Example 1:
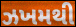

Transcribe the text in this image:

ઝખમથી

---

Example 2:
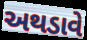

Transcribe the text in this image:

અથડાવે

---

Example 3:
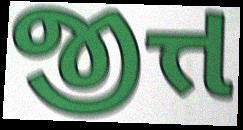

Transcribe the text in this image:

જીત્ત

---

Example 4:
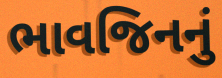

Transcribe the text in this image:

ભાવજિનનું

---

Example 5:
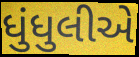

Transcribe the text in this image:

ધુંધુલીએ